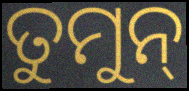
ତୁମୁନ୍